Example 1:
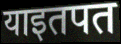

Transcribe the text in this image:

याइतपत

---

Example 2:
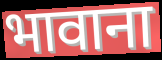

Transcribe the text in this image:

भावाना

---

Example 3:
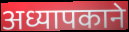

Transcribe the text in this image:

अध्यापकाने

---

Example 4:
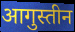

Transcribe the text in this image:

आगुस्तीन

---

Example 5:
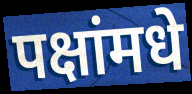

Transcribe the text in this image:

पक्षांमधे